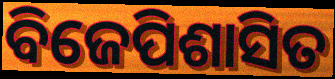
ବିଜେପିଶାସିତ